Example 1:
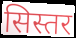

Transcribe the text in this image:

सिस्तर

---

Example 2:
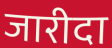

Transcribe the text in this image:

जारीदा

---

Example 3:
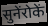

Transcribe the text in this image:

सुनेंरोकें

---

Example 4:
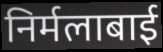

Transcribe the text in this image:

निर्मलाबाई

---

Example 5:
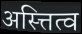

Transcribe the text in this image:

अस्त्तित्व